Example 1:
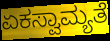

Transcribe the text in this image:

ಏಕಸ್ವಾಮ್ಯತೆ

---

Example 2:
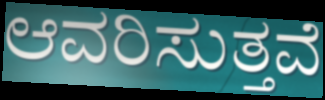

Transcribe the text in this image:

ಆವರಿಸುತ್ತವೆ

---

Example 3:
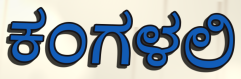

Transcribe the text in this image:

ಕಂಗಳಲಿ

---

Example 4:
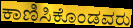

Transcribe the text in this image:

ಕಾಣಿಸಿಕೊಂಡವರು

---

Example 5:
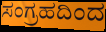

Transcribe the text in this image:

ಸಂಗ್ರಹದಿಂದ